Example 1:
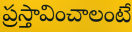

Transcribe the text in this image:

ప్రస్తావించాలంటే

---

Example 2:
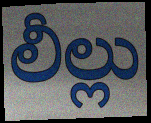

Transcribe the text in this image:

లీల్లు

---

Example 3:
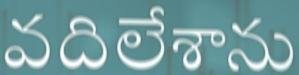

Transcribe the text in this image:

వదిలేశాను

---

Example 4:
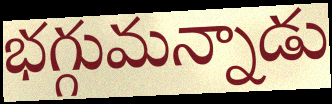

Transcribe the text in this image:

భగ్గుమన్నాడు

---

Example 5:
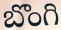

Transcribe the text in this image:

బొంగి